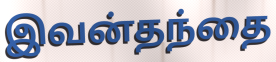
இவன்தந்தை